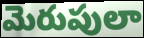
మెరుపులా